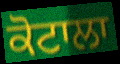
ਕੋਟਾਲਾ